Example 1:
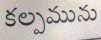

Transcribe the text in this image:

కల్పమును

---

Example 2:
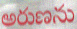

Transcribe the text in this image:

అరుణను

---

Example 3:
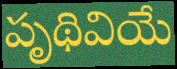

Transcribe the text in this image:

పృథివియే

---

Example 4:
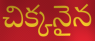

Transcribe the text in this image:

చిక్కనైన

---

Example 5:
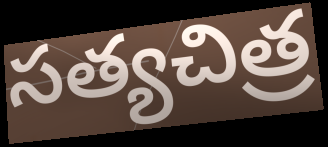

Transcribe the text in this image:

సత్యచిత్ర